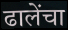
ढालेंचा